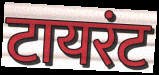
टायरंट